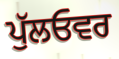
ਪੁੱਲਓਵਰ